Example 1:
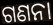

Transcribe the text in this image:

ଗଣନା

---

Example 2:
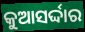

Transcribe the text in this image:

କୁଆସର୍ଦ୍ଦାର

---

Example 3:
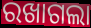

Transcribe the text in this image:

ରଖାଗଲା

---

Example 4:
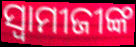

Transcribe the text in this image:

ସ୍ୱାମୀଜୀଙ୍କ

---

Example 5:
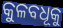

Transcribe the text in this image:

କୁଳବଧୂକୁ